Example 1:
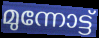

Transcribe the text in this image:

മുന്നോട്ട്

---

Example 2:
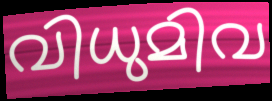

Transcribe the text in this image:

വിധുമിവ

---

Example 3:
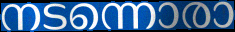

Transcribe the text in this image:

നടന്നൊരാ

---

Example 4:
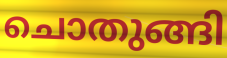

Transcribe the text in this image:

ചൊതുങ്ങി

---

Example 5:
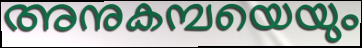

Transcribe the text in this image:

അനുകമ്പയെയും